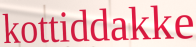
kottiddakke